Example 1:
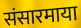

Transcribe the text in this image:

संसारमाया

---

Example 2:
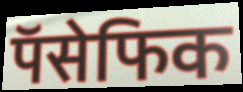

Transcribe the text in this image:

पॅसेफिक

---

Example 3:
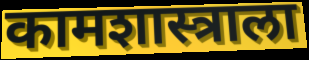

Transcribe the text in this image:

कामशास्त्राला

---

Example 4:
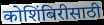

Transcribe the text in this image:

कोशिंबिरीसाठी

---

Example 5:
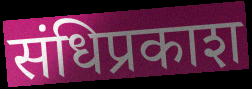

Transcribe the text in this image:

संधिप्रकाश